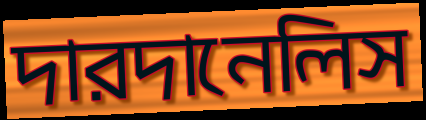
দারদানেলিস